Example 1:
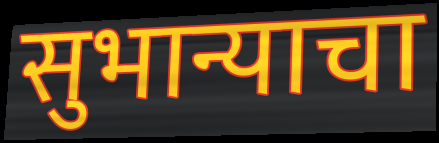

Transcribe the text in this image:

सुभान्याचा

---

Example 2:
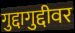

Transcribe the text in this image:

गुद्दागुद्दीवर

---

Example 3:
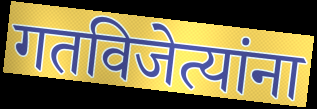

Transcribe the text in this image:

गतविजेत्यांना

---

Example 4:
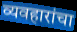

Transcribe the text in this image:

व्यवहारांचा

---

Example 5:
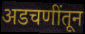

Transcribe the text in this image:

अडचणींतून